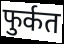
फुर्कत